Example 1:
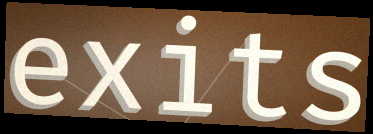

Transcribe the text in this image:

exits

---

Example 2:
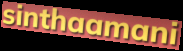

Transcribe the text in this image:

sinthaamani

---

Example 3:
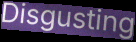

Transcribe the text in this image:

Disgusting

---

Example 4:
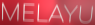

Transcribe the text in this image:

MELAYU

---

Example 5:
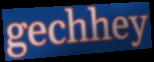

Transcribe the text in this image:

gechhey